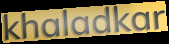
khaladkar